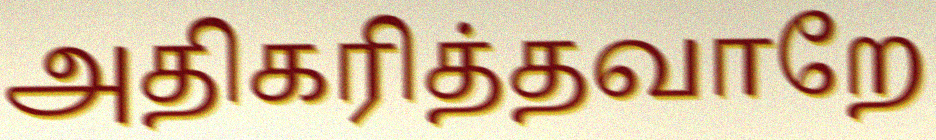
அதிகரித்தவாறே